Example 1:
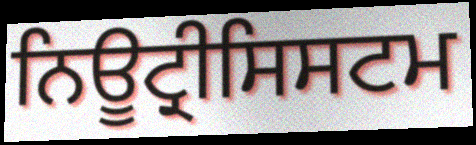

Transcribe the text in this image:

ਨਿਊਟ੍ਰੀਸਿਸਟਮ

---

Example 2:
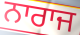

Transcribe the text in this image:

ਨਾਰਾਜ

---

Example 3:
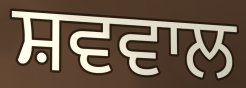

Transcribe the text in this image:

ਸ਼ਵਵਾਲ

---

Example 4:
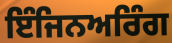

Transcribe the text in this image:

ਇੰਜਿਨਅਰਿੰਗ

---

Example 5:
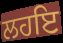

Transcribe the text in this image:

ਲਹਇ